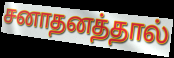
சனாதனத்தால்